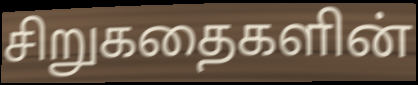
சிறுகதைகளின்